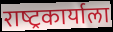
राष्ट्रकार्याला